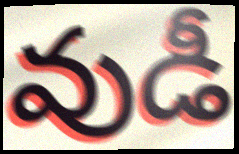
వుడీ